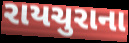
રાયચુરાના